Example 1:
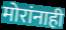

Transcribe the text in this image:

मोरांनाही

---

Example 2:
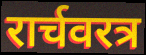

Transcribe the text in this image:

रार्चवरत्र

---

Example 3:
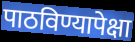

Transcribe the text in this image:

पाठविण्यापेक्षा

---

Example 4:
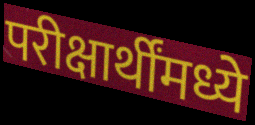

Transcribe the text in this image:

परीक्षार्थींमध्ये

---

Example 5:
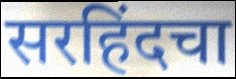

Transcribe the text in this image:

सरहिंदचा